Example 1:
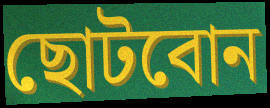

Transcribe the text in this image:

ছোটবোন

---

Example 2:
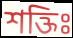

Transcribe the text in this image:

শক্তিঃ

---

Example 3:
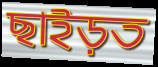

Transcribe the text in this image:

ছাইড়ত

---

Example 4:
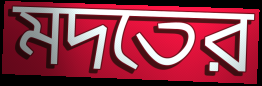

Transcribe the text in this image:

মদতের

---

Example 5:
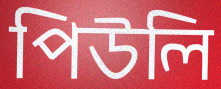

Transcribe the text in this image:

পিউলি